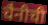
चैनीची